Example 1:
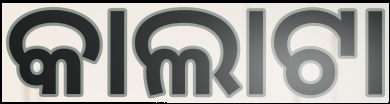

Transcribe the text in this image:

କାଲାଟା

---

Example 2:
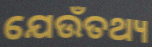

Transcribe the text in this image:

ଯେଉଁତଥ୍ୟ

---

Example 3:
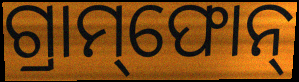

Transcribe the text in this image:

ଗ୍ରାମ୍‌ଫୋନ୍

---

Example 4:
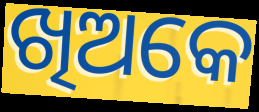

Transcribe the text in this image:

ଖିଅକେ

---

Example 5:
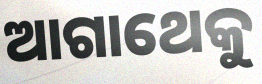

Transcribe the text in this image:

ଆଗାଥେକୁ